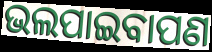
ଭଲପାଇବାପଣ